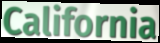
California